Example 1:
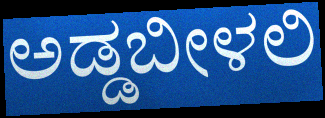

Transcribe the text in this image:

ಅಡ್ಡಬೀಳಲಿ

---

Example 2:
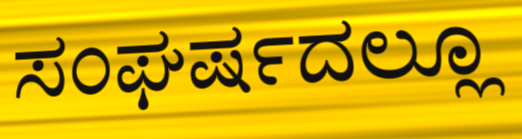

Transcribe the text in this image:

ಸಂಘರ್ಷದಲ್ಲೂ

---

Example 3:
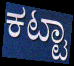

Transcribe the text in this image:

ಕಟ್ಟಾ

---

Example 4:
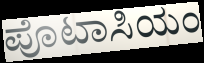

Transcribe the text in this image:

ಪೊಟಾಸಿಯಂ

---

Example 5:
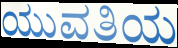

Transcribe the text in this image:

ಯುವತಿಯ